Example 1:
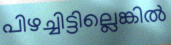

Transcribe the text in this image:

പിഴച്ചിട്ടില്ലെങ്കിൽ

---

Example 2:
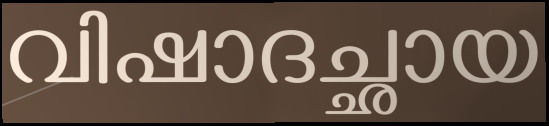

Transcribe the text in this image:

വിഷാദച്ഛായ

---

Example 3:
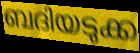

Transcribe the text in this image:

ബദിയടുക്ക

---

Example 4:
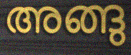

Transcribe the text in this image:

അങ്ങു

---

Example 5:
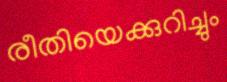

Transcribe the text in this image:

രീതിയെക്കുറിച്ചും